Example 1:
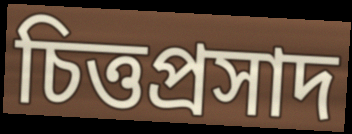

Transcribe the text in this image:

চিত্তপ্রসাদ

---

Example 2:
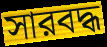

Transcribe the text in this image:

সারবদ্ধ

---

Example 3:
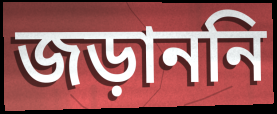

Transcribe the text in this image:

জড়াননি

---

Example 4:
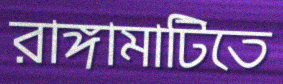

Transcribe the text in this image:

রাঙ্গামাটিতে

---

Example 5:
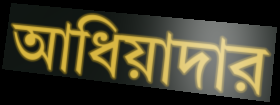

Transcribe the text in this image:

আধিয়াদার